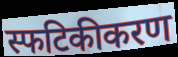
स्फटिकीकरण